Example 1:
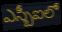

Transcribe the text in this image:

ఎస్బీఐలో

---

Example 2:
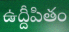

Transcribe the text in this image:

ఉద్దీపితం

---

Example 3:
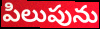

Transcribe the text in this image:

పిలుపును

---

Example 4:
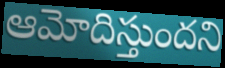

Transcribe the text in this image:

ఆమోదిస్తుందని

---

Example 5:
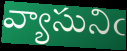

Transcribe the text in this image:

వ్యాసునిఁ